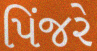
પિંજરે